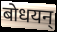
बोधयन्